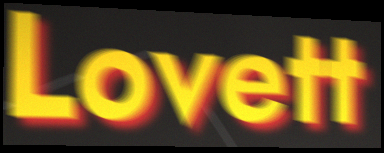
Lovett